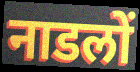
नाडलों